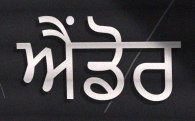
ਐਂਡੋਰ